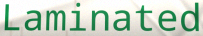
Laminated